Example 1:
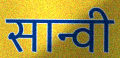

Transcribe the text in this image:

सान्वी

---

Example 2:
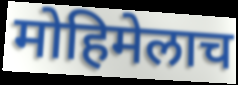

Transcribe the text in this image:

मोहिमेलाच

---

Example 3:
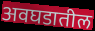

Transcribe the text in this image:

अवघडातील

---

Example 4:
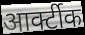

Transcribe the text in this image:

आर्क्टीक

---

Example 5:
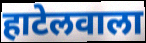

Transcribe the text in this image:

हाटेलवाला